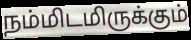
நம்மிடமிருக்கும்